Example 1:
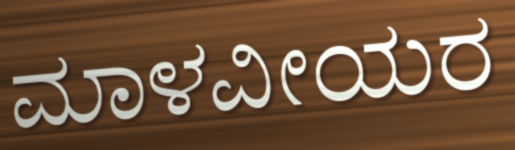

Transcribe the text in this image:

ಮಾಳವೀಯರ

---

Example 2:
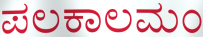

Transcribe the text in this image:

ಪಲಕಾಲಮಂ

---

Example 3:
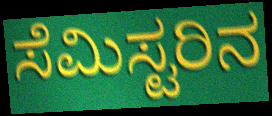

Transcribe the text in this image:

ಸೆಮಿಸ್ಟರಿನ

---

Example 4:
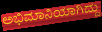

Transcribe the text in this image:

ಅಭಿಮಾನಿಯಾಗಿದ್ದು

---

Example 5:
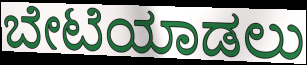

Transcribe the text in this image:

ಬೇಟೆಯಾಡಲು